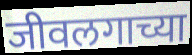
जीवलगाच्या